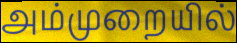
அம்முறையில்